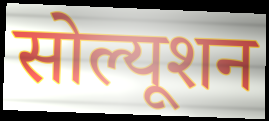
सोल्‍यूशन